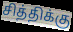
சித்திக்கு